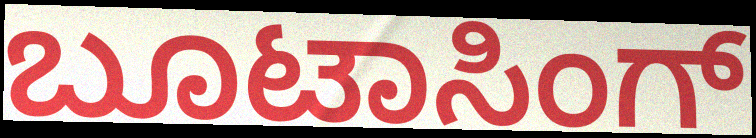
ಬೂಟಾಸಿಂಗ್